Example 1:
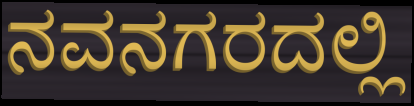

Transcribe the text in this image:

ನವನಗರದಲ್ಲಿ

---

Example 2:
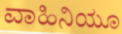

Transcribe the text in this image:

ವಾಹಿನಿಯೂ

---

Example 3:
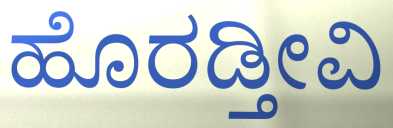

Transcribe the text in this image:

ಹೊರಡ್ತೀವಿ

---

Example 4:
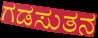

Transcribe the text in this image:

ಗಡಸುತನ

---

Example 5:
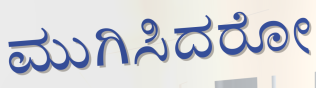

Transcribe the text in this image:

ಮುಗಿಸಿದರೋ